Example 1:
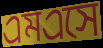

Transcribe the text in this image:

এমএসে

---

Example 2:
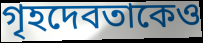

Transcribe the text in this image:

গৃহদেবতাকেও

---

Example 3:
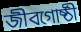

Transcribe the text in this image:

জীবগোষ্ঠী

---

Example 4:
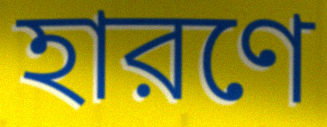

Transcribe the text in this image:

হারণে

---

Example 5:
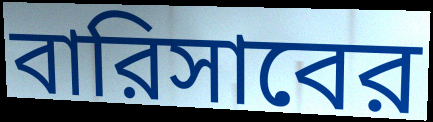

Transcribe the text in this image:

বারিসাবের